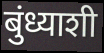
बुंध्याशी